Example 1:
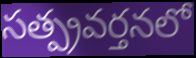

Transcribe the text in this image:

సత్ప్రవర్తనలో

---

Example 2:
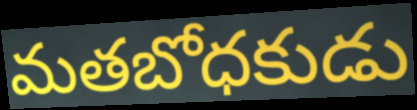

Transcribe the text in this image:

మతబోధకుడు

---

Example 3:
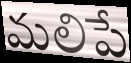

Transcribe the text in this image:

మలిపే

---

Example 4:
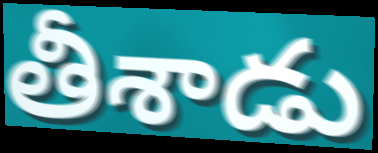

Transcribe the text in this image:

తీశాడు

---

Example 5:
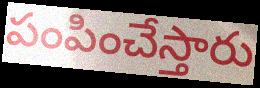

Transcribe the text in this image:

పంపించేస్తారు